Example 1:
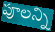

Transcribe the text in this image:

పూలన్ని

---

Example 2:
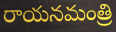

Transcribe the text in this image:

రాయనమంత్రి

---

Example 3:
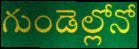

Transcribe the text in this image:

గుండెల్లోనో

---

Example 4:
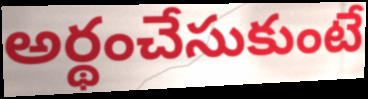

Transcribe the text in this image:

అర్థంచేసుకుంటే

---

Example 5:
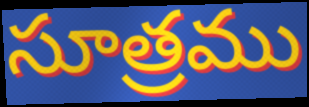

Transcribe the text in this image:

సూత్రము